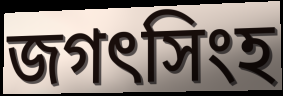
জগৎসিংহ